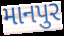
માનપુર